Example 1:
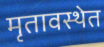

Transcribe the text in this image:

मृतावस्थेत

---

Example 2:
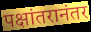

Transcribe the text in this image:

पक्षांतरानंतर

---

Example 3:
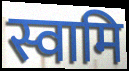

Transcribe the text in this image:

स्वामि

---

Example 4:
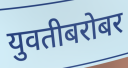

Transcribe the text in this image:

युवतीबरोबर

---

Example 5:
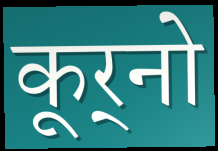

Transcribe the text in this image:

कूर्नो